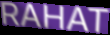
RAHAT